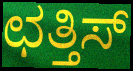
ಛತ್ತಿಸ್